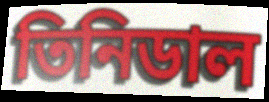
তিনিডাল